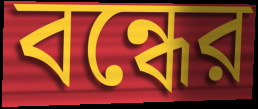
বন্ধের